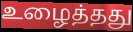
உழைத்தது